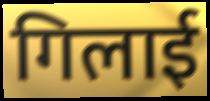
गिलाई